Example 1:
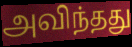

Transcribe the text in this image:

அவிந்தது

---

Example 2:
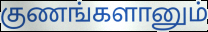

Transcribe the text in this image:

குணங்களானும்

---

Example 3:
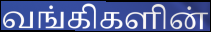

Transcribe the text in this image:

வங்கிகளின்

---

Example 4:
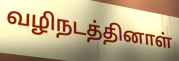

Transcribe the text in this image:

வழிநடத்தினாள்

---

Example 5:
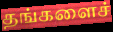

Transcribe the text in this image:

தங்களைச்